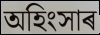
অহিংসাৰ